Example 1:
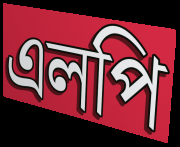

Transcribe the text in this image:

এলপি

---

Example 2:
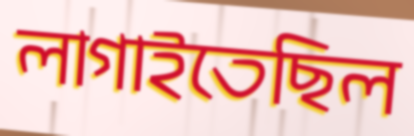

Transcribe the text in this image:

লাগাইতেছিল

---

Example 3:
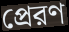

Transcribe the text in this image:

প্রেরণ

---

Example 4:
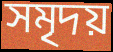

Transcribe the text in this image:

সমৃদয়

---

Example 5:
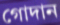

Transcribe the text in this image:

গোদান